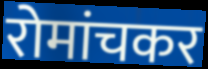
रोमांचकर